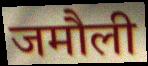
जमौली